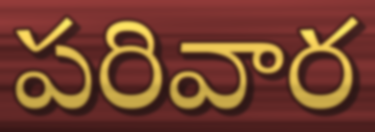
పరివార